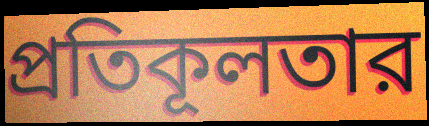
প্রতিকূলতার